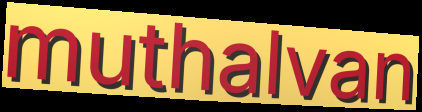
muthalvan